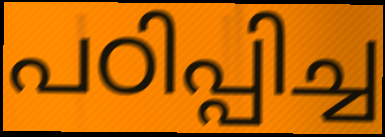
പഠിപ്പിച്ച